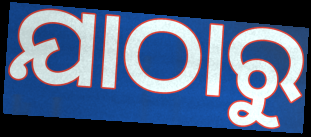
ଯାଠାରୁ